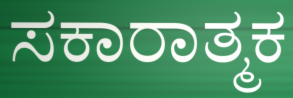
ಸಕಾರಾತ್ಮಕ